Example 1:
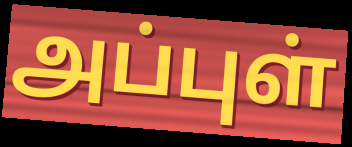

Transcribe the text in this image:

அப்புள்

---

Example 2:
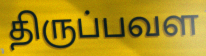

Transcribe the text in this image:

திருப்பவள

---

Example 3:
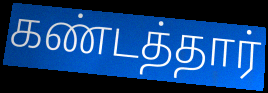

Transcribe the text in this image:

கண்டத்தார்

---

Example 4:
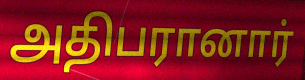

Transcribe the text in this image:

அதிபரானார்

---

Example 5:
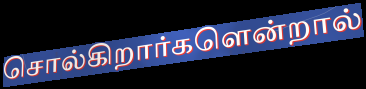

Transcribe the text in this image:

சொல்கிறார்களென்றால்